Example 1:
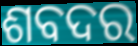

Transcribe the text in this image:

ଶବଦର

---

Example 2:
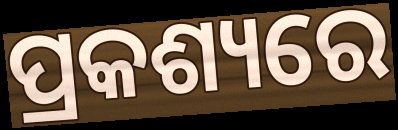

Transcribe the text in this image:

ପ୍ରକଶ୍ୟରେ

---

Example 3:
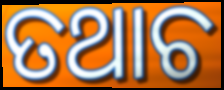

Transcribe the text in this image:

ତଥାଚ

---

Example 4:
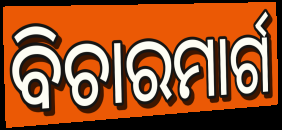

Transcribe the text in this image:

ବିଚାରମାର୍ଗ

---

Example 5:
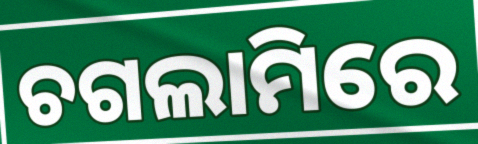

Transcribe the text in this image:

ଚଗଲାମିରେ